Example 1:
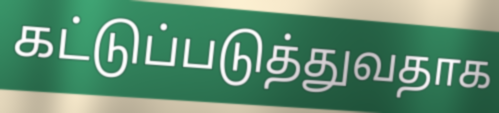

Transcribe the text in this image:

கட்டுப்படுத்துவதாக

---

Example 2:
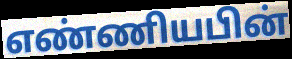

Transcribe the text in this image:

எண்ணியபின்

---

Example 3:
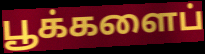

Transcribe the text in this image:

பூக்களைப்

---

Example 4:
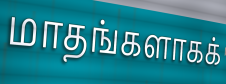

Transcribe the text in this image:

மாதங்களாகக்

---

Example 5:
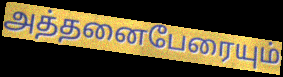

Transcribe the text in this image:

அத்தனைபேரையும்